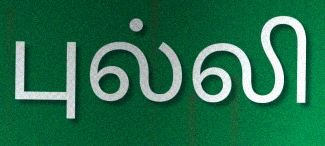
புல்லி